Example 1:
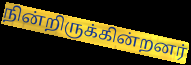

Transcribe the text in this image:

நின்றிருக்கின்றனர்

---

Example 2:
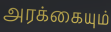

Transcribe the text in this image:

அரக்கையும்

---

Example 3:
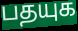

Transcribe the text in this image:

பதயுக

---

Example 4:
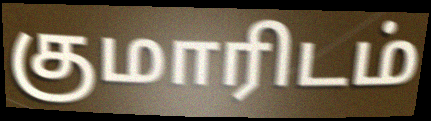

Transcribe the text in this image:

குமாரிடம்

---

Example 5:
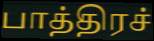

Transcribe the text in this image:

பாத்திரச்